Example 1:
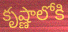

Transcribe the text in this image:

కృష్ణాలోకి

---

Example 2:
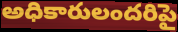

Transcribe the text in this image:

అధికారులందరిపై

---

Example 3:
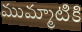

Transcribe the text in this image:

ముమ్మాటికి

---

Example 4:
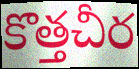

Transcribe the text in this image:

కొత్తచీర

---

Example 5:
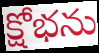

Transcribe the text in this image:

క్షోభను